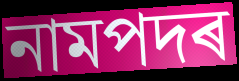
নামপদৰ